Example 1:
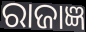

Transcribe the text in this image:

ରାଜାଜ୍ଞ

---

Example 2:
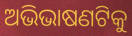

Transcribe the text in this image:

ଅଭିଭାଷଣଟିକୁ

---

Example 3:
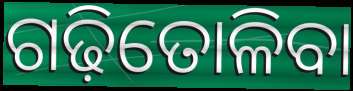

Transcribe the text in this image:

ଗଢ଼ିତୋଳିବା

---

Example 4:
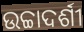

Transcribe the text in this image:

ଉଚ୍ଚାଦର୍ଶୀ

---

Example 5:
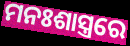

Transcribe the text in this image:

ମନଃଶାସ୍ତ୍ରରେ